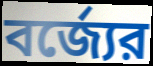
বর্জ্যের